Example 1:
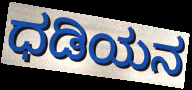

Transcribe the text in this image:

ಧಡಿಯನ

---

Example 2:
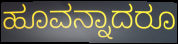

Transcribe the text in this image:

ಹೂವನ್ನಾದರೂ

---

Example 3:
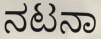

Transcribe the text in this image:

ನಟನಾ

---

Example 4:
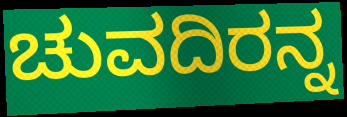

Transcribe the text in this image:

ಚುವದಿರನ್ನ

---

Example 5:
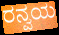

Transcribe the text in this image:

ರನ್ವಯ